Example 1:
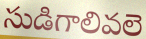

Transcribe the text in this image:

సుడిగాలివలె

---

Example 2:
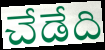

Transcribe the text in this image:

చేడేది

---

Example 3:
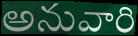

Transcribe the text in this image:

అనువారి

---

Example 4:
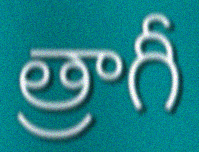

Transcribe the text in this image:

త్రాగీ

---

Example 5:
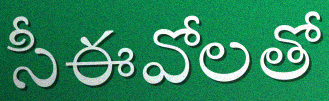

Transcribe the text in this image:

సీఈవోలతో